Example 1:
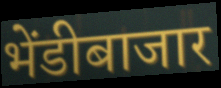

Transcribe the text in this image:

भेंडीबाजार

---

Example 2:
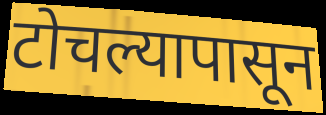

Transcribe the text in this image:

टोचल्यापासून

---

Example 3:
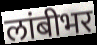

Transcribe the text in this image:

लांबीभर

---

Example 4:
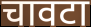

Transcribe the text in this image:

चावटा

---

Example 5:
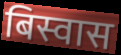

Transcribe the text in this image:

बिस्वास